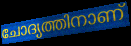
ചോദ്യത്തിനാണ്